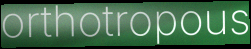
orthotropous